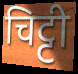
चिट्टी